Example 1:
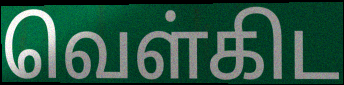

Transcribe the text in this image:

வெள்கிட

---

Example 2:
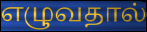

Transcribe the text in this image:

எழுவதால்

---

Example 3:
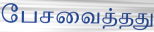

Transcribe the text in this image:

பேசவைத்தது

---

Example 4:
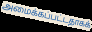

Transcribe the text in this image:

அமைக்கப்பட்டதாகக்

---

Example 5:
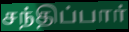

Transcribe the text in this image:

சந்திப்பார்